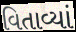
વિતાવ્યાં